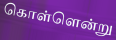
கொள்ளென்று